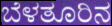
ಬೆಳತೂರಿನ